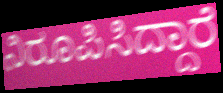
ನಿರೂಪಿಸಿದ್ದಾರೆ